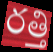
రత్తి